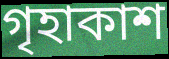
গৃহাকাশ